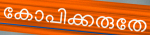
കോപിക്കരുതേ